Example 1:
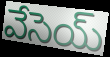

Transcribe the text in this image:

వేసెయ్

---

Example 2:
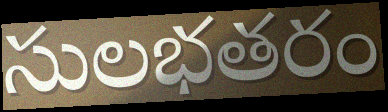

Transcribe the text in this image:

సులభతరం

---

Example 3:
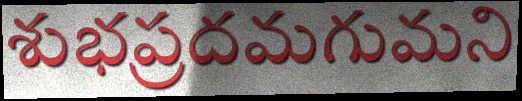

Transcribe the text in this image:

శుభప్రదమగుమని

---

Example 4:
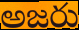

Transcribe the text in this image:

అజరు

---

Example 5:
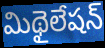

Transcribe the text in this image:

మిథైలేషన్